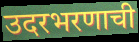
उदरभरणाची